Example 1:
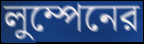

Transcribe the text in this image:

লুম্পেনের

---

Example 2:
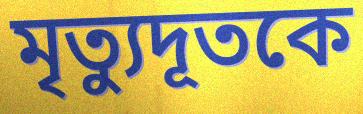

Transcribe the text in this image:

মৃত্যুদূতকে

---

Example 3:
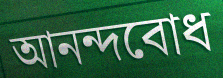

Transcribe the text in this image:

আনন্দবোধ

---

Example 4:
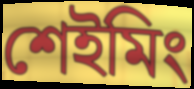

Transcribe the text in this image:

শেইমিং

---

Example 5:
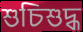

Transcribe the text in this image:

শুচিশুদ্ধ